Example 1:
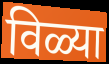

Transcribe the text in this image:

विळ्या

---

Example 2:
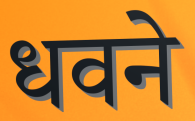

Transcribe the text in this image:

धवने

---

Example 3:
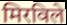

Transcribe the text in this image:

मिरविले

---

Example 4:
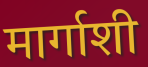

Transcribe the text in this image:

मार्गाशी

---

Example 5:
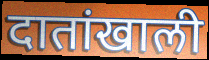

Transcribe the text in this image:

दातांखाली